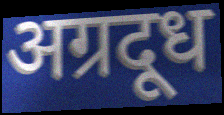
अग्रदूध